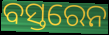
ବସ୍ତରେନ